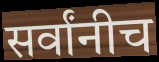
सर्वांनीच